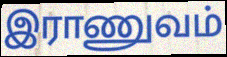
இராணுவம்